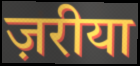
ज़रीया